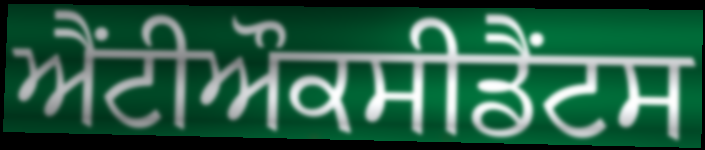
ਐਂਟੀਔਕਸੀਡੈਂਟਸ